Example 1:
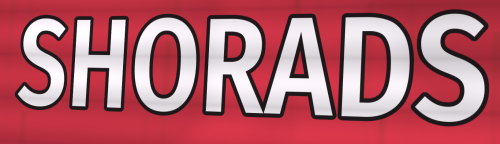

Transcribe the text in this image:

SHORADS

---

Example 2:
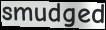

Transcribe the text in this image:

smudged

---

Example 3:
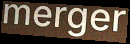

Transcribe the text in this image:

merger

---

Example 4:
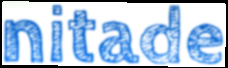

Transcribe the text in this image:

nitade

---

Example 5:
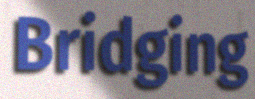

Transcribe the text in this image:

Bridging